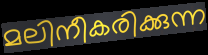
മലിനീകരിക്കുന്ന